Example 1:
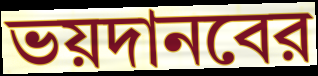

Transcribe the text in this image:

ভয়দানবের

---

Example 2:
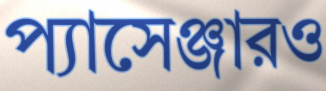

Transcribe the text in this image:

প্যাসেঞ্জারও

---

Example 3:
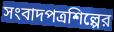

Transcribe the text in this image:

সংবাদপত্রশিল্পের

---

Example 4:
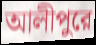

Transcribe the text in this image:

আলীপুরে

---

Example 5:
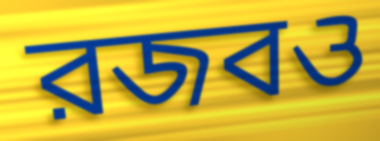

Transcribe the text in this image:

রজবও